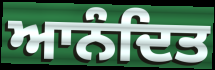
ਆਨੰਦਿਤ